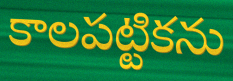
కాలపట్టికను